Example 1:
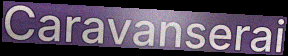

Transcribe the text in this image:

Caravanserai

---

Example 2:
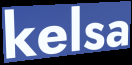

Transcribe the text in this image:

kelsa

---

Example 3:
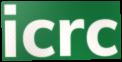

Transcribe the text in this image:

icrc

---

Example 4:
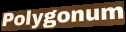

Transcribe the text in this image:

Polygonum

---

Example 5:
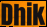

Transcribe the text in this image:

Dhik